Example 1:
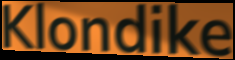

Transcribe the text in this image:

Klondike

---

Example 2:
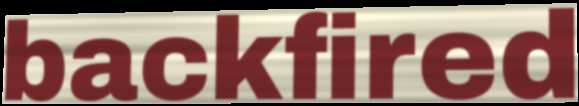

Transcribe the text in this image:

backfired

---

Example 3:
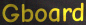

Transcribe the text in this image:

Gboard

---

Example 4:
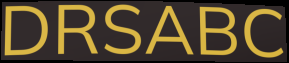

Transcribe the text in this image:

DRSABC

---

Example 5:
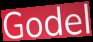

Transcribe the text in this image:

Godel